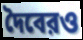
দৈবেরও